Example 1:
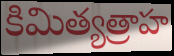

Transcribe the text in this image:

కిమిత్యత్రాహ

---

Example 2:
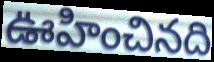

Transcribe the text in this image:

ఊహించినది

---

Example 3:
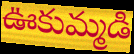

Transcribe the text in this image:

ఊకుమ్మడి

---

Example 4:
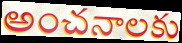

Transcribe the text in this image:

అంచనాలకు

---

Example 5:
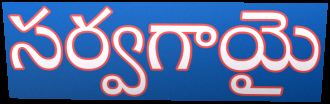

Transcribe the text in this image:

సర్వగాయై